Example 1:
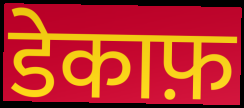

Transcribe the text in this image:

डेकाफ़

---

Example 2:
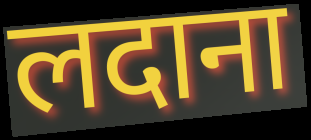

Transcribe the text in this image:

लदाना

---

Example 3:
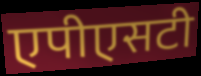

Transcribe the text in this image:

एपीएसटी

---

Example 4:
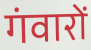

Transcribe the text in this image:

गंवारों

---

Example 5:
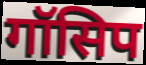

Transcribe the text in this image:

गॉसिप